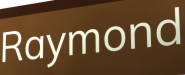
Raymond